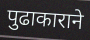
पुढाकाराने